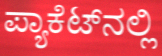
ಪ್ಯಾಕೆಟ್‍ನಲ್ಲಿ